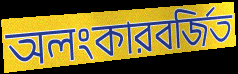
অলংকারবর্জিত